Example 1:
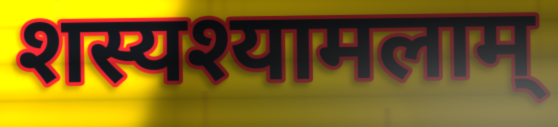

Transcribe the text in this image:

शस्यश्यामलाम्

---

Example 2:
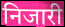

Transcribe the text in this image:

निजारी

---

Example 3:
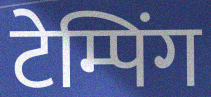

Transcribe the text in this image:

टेम्पिंग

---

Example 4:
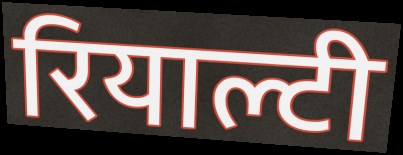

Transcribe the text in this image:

रियाल्टी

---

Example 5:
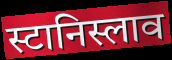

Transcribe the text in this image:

स्टानिस्लाव